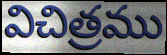
విచిత్రము